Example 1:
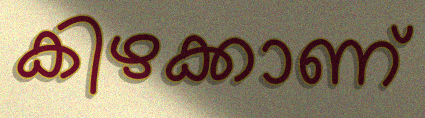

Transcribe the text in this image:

കിഴക്കാണ്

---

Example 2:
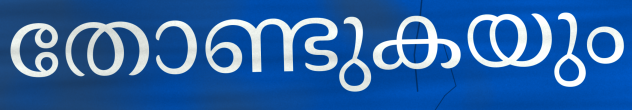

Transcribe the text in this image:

തോണ്ടുകയും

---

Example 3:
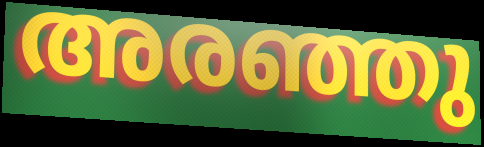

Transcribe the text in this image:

അരഞ്ഞു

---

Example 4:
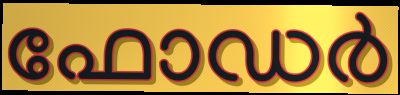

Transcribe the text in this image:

ഫോഡർ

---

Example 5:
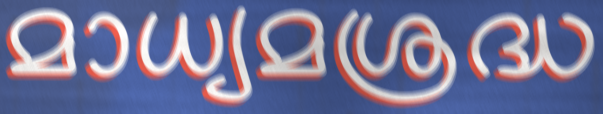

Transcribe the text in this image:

മാധ്യമശ്രദ്ധ